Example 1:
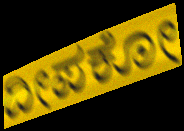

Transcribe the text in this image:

ದೀಪಕೋ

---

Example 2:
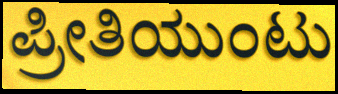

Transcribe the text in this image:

ಪ್ರೀತಿಯುಂಟು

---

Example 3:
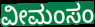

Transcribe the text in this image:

ವೀಮಂಸಂ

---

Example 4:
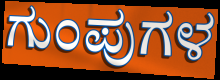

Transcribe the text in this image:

ಗುಂಪುಗಳ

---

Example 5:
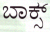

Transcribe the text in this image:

ಬಾಕ್ಸ್